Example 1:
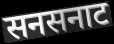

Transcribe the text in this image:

सनसनाट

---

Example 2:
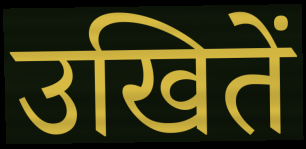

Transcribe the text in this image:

उखितें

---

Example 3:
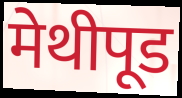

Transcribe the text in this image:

मेथीपूड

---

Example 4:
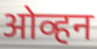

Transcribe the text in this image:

ओव्हन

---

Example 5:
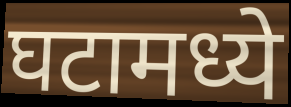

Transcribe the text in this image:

घटामध्ये